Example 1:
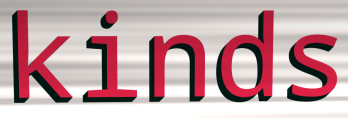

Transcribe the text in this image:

kinds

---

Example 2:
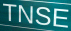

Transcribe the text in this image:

TNSE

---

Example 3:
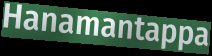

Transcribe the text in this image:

Hanamantappa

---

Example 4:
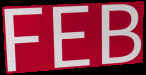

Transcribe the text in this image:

FEB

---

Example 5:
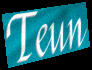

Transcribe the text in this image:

Teun